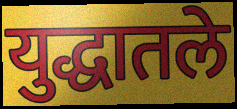
युद्धातले